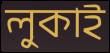
লুকাই